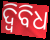
ଦ୍ଵିବିଧ